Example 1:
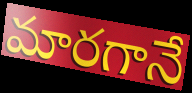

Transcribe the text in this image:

మారగానే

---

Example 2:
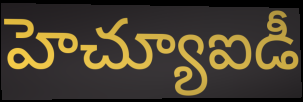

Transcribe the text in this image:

హెచ్యూఐడీ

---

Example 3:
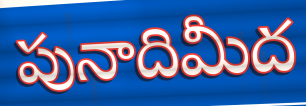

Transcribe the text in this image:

పునాదిమీద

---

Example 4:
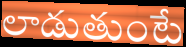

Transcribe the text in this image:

లాడుతుంటే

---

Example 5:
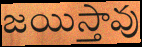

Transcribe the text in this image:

జయిస్తావు